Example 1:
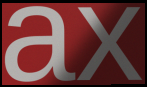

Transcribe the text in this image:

ax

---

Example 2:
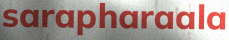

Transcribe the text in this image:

sarapharaala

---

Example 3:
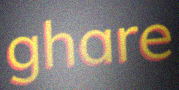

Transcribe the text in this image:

ghare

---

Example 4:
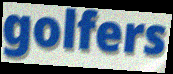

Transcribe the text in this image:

golfers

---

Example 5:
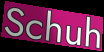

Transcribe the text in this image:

Schuh